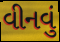
વીનવું